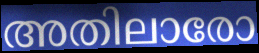
അതിലാരോ